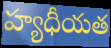
హ్యధీయత